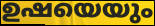
ഉഷയെയും